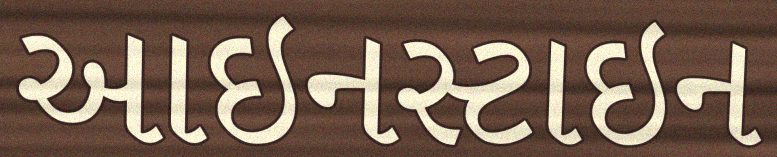
આઇનસ્ટાઇન